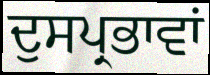
ਦੁਸਪ੍ਰਭਾਵਾਂ